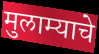
मुलाम्याचे